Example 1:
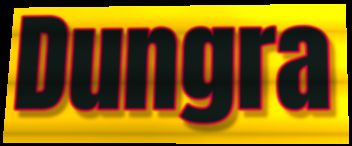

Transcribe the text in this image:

Dungra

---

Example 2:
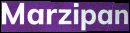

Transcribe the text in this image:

Marzipan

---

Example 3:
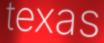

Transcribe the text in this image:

texas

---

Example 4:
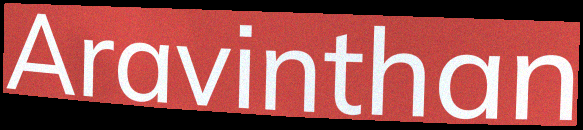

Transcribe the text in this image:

Aravinthan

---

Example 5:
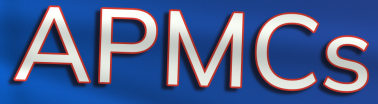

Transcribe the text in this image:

APMCs